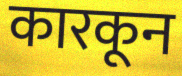
कारकून